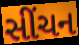
સીંચન